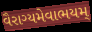
વૈરાગ્યમેવાભયમ્